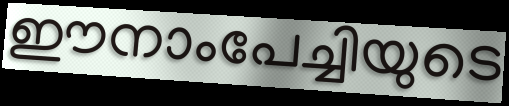
ഈനാംപേച്ചിയുടെ